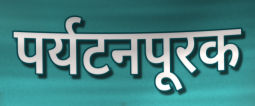
पर्यटनपूरक